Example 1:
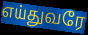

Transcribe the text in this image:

எய்துவரே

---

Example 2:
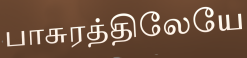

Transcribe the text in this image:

பாசுரத்திலேயே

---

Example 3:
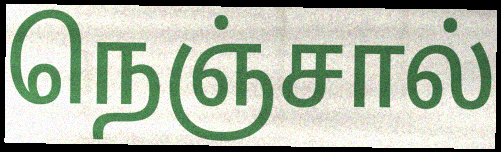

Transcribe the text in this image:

நெஞ்சால்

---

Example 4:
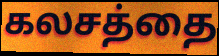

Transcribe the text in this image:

கலசத்தை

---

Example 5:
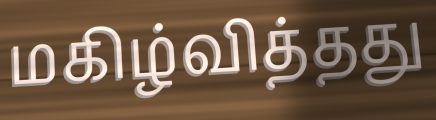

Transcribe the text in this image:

மகிழ்வித்தது